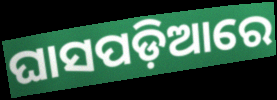
ଘାସପଡ଼ିଆରେ